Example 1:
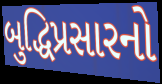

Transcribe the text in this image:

બુદ્ધિપ્રસારનો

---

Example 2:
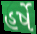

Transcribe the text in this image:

હર્ષે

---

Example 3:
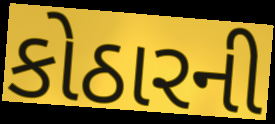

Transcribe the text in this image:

કોઠારની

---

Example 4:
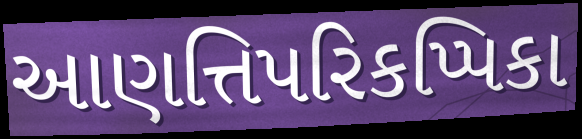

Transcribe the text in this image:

આણત્તિપરિકપ્પિકા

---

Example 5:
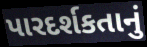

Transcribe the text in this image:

પારદર્શકતાનું